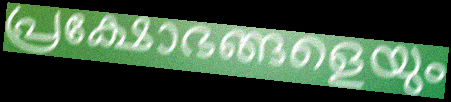
പ്രക്ഷോഭങ്ങളെയും